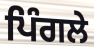
ਪਿੰਗਲੇ